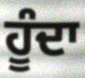
ਹੂੰਦਾ